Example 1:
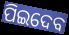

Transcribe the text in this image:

ପିଇଦେବ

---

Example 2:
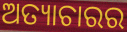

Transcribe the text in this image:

ଅତ୍ୟାଚାରର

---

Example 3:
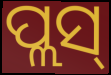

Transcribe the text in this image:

ପ୍ଲସ୍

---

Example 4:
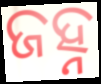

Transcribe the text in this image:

ଜହ୍ନ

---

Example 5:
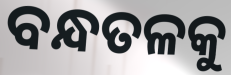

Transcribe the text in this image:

ବନ୍ଧତଳକୁ